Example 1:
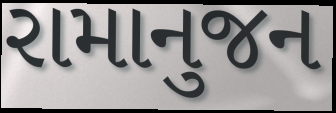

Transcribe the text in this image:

રામાનુજન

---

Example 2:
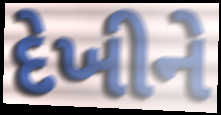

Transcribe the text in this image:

દેખીને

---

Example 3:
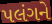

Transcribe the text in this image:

પલંગને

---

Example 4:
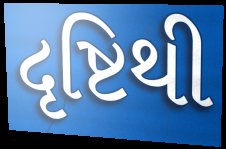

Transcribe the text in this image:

દૃષ્ટિથી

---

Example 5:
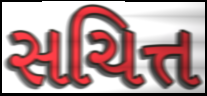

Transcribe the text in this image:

સચિત્ત